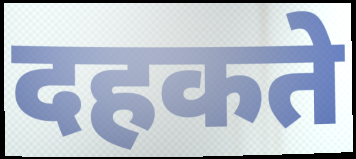
दहकते